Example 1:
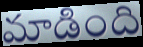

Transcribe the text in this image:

మాడింది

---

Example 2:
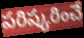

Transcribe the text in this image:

పరిష్కరించే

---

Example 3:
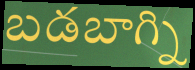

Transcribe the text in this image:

బడబాగ్ని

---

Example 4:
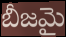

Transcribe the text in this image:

బీజమై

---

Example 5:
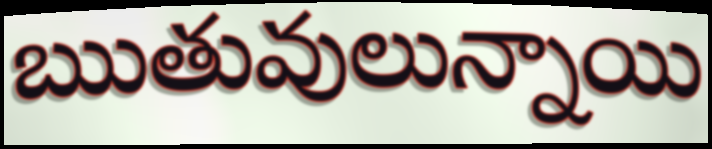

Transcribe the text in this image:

ఋతువులున్నాయి